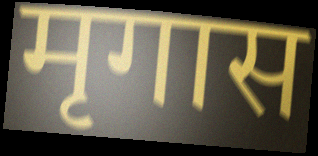
मृगास